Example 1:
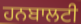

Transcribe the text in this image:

ਹਨਬਾਲਟੀ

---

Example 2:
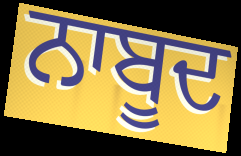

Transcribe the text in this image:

ਨਾਬੂਦ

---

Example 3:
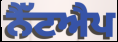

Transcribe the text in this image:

ਨੈੱਟਐਪ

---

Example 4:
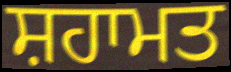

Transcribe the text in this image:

ਸ਼ਹਾਮਤ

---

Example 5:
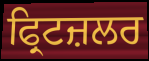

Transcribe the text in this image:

ਫ੍ਰਿਟਜ਼ਲਰ